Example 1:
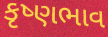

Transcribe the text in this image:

કૃષ્ણભાવ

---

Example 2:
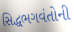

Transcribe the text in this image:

સિદ્ધભગવંતોની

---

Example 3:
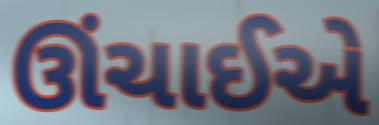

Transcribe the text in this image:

ઊંચાઈએ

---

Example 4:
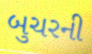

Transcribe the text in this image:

બુચરની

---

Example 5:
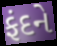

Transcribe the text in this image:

ફંદને